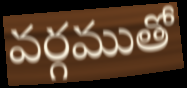
వర్గముతో